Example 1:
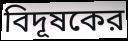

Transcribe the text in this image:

বিদূষকের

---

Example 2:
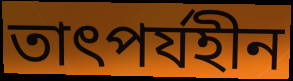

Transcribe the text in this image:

তাৎপর্যহীন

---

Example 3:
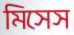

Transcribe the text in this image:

মিসেস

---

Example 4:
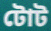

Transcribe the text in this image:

টোট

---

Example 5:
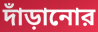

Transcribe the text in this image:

দাঁড়ানোর